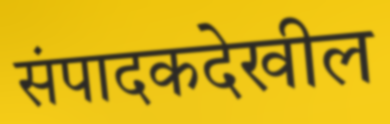
संपादकदेखील